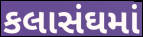
કલાસંઘમાં